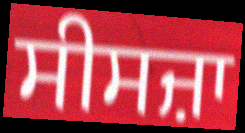
ਸੀਸਜ਼ਾ